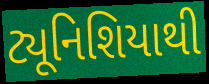
ટ્યૂનિશિયાથી